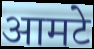
आमटे